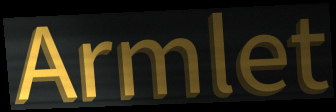
Armlet